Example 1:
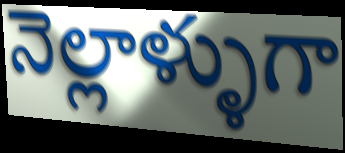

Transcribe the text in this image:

నెల్లాళ్ళుగా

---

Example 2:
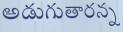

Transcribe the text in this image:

అడుగుతారన్న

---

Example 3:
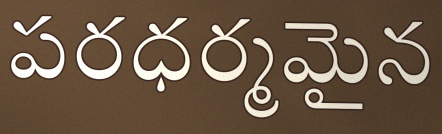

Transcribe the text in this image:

పరధర్మమైన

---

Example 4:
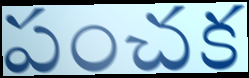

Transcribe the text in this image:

పంచక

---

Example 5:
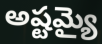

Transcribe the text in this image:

అష్టమ్యై